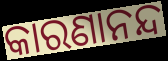
କାରଣାନନ୍ଦ